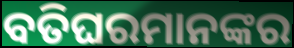
ବତିଘରମାନଙ୍କର